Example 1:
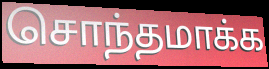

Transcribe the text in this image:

சொந்தமாக்க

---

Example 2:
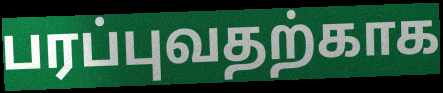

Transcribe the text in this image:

பரப்புவதற்காக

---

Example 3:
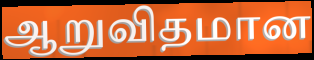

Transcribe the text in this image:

ஆறுவிதமான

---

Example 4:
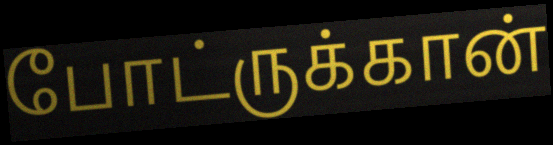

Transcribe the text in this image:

போட்ருக்கான்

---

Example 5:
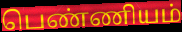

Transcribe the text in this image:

பெண்ணியம்